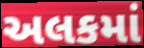
અલકમાં